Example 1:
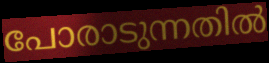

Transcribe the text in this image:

പോരാടുന്നതിൽ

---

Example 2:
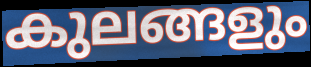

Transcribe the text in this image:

കുലങ്ങളും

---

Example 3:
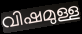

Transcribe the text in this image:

വിഷമുള്ള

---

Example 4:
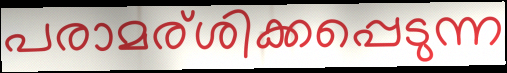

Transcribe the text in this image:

പരാമര്ശിക്കപ്പെടുന്ന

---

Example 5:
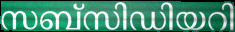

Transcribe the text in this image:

സബ്സിഡിയറി